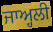
ਜਾਅ੍ਹਲੀ